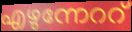
എഴുന്നേററ്